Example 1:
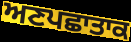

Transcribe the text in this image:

ਅਣਪਛਾਤਾਕ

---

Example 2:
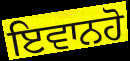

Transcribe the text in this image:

ਇਵਾਨਹੋ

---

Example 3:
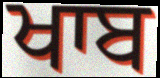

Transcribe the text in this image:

ਖਾਬ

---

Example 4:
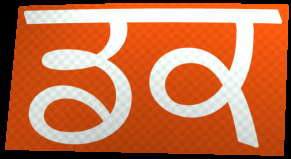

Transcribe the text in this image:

ਡਕ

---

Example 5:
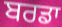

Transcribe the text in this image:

ਬਰਡਾ